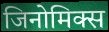
जिनोमिक्स